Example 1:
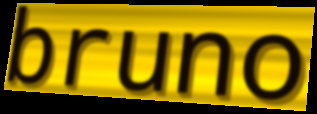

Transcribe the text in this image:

bruno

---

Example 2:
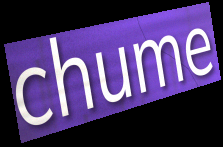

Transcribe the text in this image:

chume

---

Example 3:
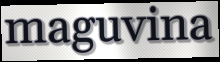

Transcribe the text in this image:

maguvina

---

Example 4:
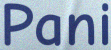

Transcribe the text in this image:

Pani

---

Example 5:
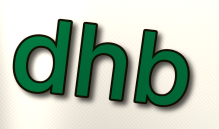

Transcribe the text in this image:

dhb